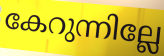
കേറുന്നില്ലേ